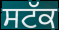
ਸਟੱਕ